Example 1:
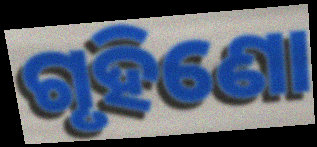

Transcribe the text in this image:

ଗୃହିଣୋ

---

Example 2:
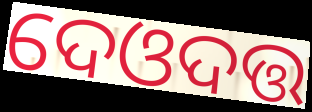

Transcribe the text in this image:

ଦେଓଦତ୍ତ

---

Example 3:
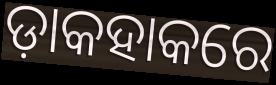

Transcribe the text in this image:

ଡ଼ାକହାକରେ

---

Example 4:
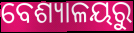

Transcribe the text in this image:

ବେଶ୍ୟାଳୟରୁ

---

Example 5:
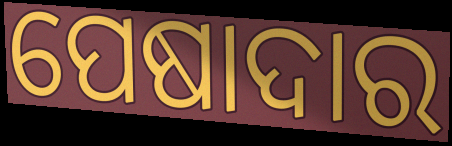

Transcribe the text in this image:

ପେଷାଦାର